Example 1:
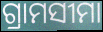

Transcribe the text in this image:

ଗ୍ରାମସୀମା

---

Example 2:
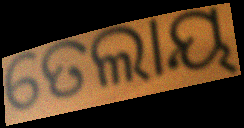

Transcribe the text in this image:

ତେଲାୟ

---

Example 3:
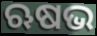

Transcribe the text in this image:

ଋଷଭ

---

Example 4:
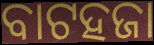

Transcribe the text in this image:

ବାଟହଜା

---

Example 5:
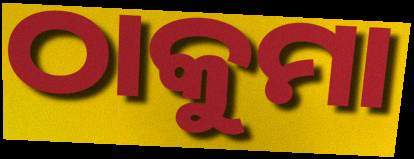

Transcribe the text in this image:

ଠାକୁମା